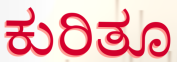
ಕುರಿತೂ